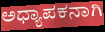
ಅಧ್ಯಾಪಕನಾಗಿ